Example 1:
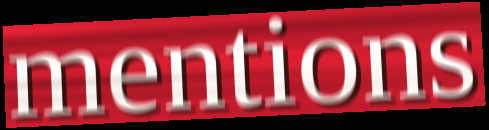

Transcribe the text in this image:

mentions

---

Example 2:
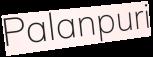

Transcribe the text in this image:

Palanpuri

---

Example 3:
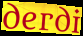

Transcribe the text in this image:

derdi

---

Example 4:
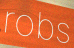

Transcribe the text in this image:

robs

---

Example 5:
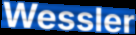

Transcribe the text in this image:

Wessler